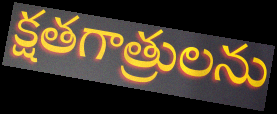
క్షతగాత్రులను